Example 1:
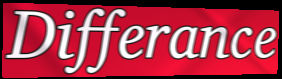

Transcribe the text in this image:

Differance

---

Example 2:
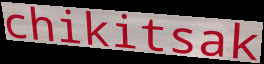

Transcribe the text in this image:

chikitsak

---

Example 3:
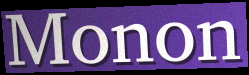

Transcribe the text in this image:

Monon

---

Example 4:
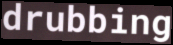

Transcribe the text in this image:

drubbing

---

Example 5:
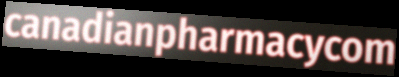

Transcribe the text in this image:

canadianpharmacycom